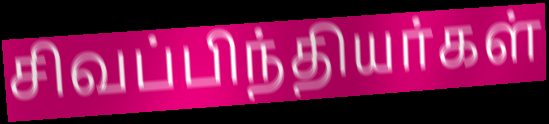
சிவப்பிந்தியர்கள்